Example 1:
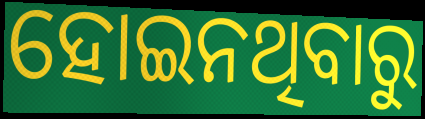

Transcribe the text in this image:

ହୋଇନଥିବାରୁ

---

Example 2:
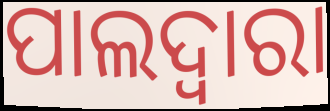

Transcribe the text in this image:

ପାଲଦ୍ୱାରା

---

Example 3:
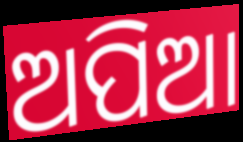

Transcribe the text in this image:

ଅପିଆ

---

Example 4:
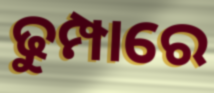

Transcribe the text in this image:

ଢୁମ୍ପାରେ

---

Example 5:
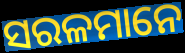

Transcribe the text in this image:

ସରଳମାନେ